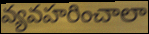
వ్యవహరించాలా